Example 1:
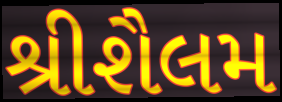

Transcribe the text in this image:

શ્રીશૈલમ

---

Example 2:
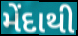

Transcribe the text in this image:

મેંદાથી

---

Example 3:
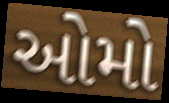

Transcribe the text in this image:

ઓમો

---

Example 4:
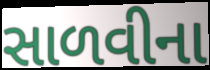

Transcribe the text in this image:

સાળવીના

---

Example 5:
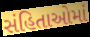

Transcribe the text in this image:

સંહિતાઓમાં